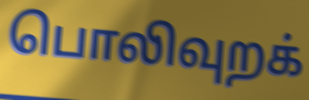
பொலிவுறக்